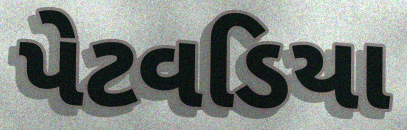
પેટવડિયા